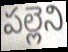
పల్లెని